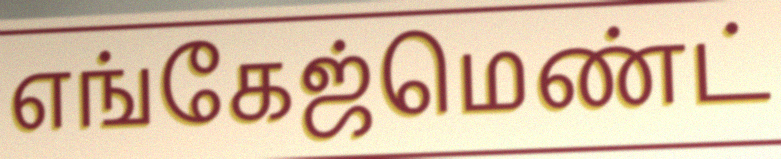
எங்கேஜ்மெண்ட்